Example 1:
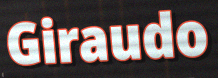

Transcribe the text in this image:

Giraudo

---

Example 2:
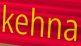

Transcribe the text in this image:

kehna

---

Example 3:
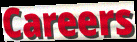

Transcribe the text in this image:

Careers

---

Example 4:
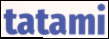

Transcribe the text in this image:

tatami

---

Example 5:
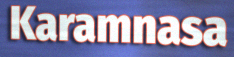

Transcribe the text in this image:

Karamnasa